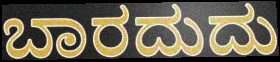
ಬಾರದುದು